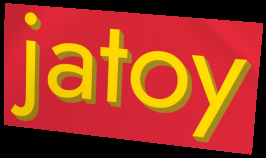
jatoy